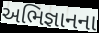
અભિજ્ઞાનના